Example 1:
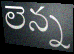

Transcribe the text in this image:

లెన్న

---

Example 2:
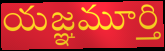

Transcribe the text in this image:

యజ్ఞమూర్తి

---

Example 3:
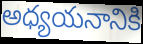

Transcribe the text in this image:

అధ్యయనానికి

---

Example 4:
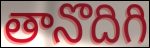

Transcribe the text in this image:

తానొదిగి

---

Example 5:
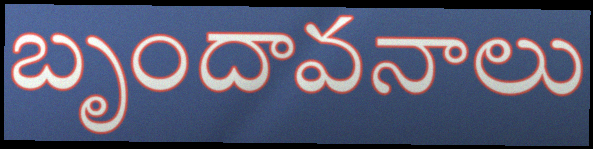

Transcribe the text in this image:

బృందావనాలు